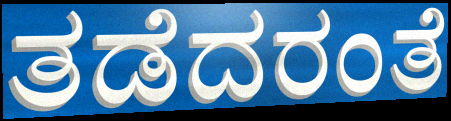
ತಡೆದರಂತೆ